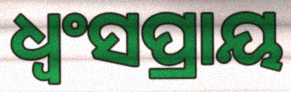
ଧ୍ୱଂସପ୍ରାୟ